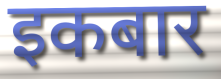
इकबार